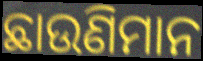
ଛାଉଣିମାନ